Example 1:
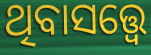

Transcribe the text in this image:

ଥିବାସତ୍ତ୍ଵେ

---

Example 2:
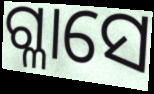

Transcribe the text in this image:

ଗ୍ଳାସେ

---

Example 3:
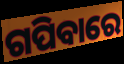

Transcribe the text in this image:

ଗପିବାରେ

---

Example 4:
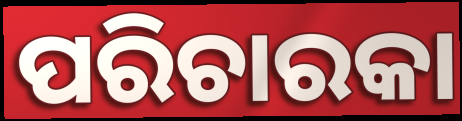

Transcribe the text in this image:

ପରିଚାରକା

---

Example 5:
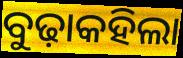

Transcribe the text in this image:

ବୁଢ଼ାକହିଲା